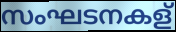
സംഘടനകള്